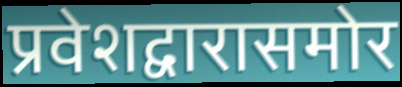
प्रवेशद्वारासमोर